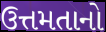
ઉત્તમતાનો